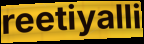
reetiyalli